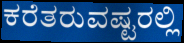
ಕರೆತರುವಷ್ಟರಲ್ಲಿ